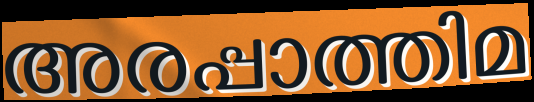
അരപ്പാത്തിമ